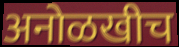
अनोळखीच